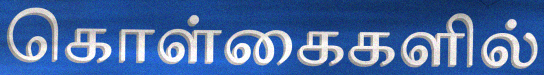
கொள்கைகளில்